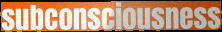
subconsciousness